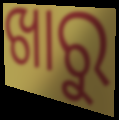
ଖାରୁ